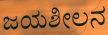
ಜಯಶೀಲನ